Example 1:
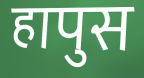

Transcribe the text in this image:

हापुस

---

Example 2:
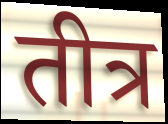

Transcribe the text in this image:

तीत्र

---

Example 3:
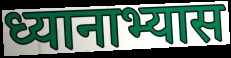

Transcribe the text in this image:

ध्यानाभ्यास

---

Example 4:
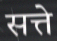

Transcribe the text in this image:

सत्ते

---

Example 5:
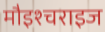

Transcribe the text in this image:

मौइश्चराइज